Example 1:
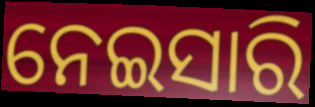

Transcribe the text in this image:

ନେଇସାରି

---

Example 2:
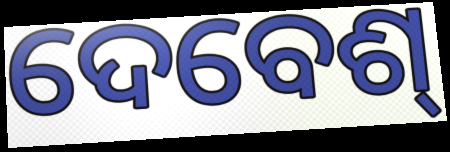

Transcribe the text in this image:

ଦେବେଶ୍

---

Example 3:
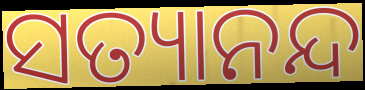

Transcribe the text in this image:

ସତ୍ୟାନନ୍ଦ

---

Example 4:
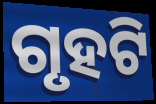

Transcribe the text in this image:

ଗୃହଟି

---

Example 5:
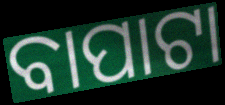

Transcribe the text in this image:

ବାପାଟା